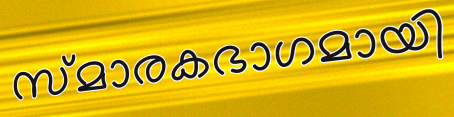
സ്മാരകഭാഗമായി